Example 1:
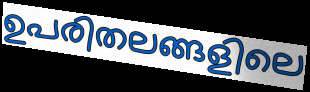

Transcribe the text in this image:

ഉപരിതലങ്ങളിലെ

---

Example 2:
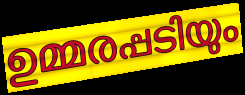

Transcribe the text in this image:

ഉമ്മരപ്പടിയും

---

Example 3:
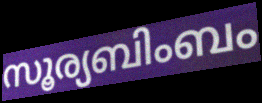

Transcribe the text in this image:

സൂര്യബിംബം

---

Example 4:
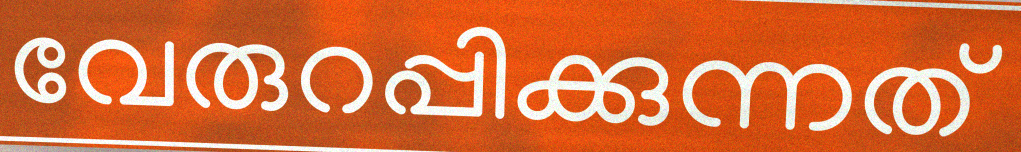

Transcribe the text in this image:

വേരുറപ്പിക്കുന്നത്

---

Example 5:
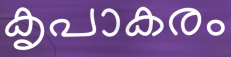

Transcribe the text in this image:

കൃപാകരം